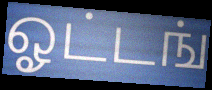
ஓட்டங்